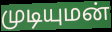
முடியுமன்